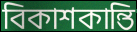
বিকাশকান্তি